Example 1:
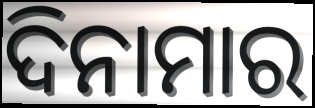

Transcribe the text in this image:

ଦିନାମାର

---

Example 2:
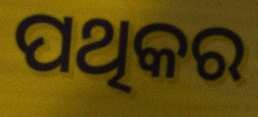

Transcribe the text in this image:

ପଥିକର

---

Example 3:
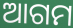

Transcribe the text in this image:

ଆଗମ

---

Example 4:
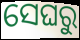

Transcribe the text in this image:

ସେଘରୁ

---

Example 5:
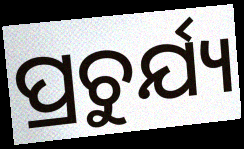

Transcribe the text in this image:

ପ୍ରଚୁର୍ଯ୍ୟ